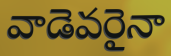
వాడెవరైనా